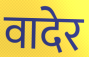
वादेर